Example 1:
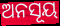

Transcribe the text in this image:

ଅନସୂୟ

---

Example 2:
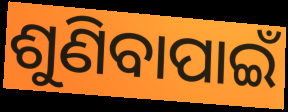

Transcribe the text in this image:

ଶୁଣିବାପାଇଁ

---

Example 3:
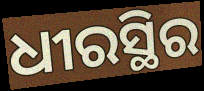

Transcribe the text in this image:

ଧୀରସ୍ଥିର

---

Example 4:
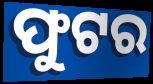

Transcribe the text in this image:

ଫୁଟର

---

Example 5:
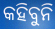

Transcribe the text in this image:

କହିବୁନି